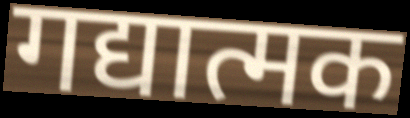
गद्यात्मक